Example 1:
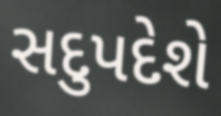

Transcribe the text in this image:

સદુપદેશે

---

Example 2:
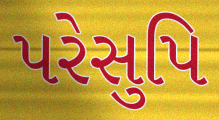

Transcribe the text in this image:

પરેસુપિ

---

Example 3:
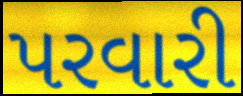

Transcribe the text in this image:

પરવારી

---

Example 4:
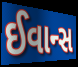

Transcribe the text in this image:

ઈવાન્સ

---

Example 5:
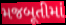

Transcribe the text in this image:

મજબૂતીમાં